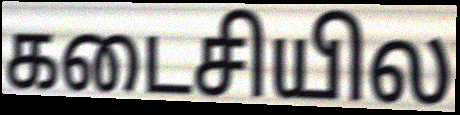
கடைசியில